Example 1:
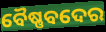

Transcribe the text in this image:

ବୈଷ୍ଣବଦେର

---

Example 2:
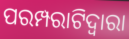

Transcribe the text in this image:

ପରମ୍ପରାଟିଦ୍ୱାରା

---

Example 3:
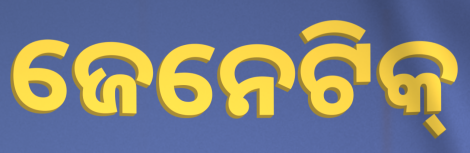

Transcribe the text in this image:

ଜେନେଟିକ୍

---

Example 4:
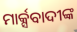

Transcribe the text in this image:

ମାର୍କ୍ସବାଦୀଙ୍କ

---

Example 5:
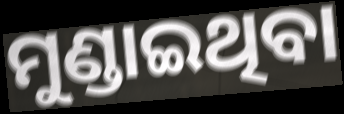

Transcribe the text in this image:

ମୁଣ୍ଡାଇଥିବା